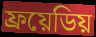
ফ্রয়েডিয়